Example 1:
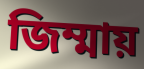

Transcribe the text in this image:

জিম্মায়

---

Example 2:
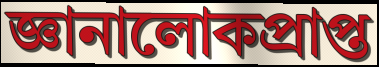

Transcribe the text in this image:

জ্ঞানালোকপ্রাপ্ত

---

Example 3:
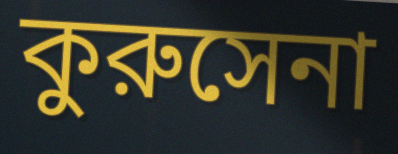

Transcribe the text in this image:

কুরুসেনা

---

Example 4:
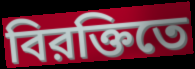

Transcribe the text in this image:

বিরক্তিতে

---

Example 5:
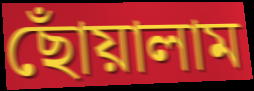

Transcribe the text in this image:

ছোঁয়ালাম